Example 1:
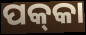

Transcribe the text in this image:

ପକ୍‌କା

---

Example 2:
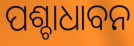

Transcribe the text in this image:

ପଶ୍ଚାଧାବନ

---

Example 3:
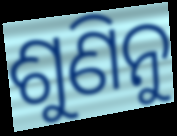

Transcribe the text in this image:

ଶୁଣିନୁ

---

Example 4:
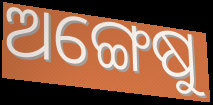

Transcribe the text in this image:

ଅଙ୍ଗେଷୁ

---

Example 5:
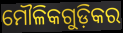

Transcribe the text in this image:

ମୌଳିକଗୁଡ଼ିକର